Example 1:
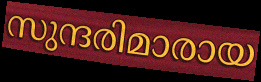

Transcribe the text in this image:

സുന്ദരിമാരായ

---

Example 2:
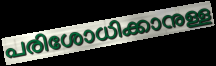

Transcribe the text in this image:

പരിശോധിക്കാനുള്ള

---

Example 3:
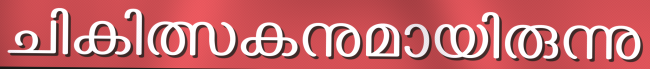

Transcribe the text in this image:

ചികിത്സകനുമായിരുന്നു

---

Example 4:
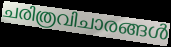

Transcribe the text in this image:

ചരിത്രവിചാരങ്ങൾ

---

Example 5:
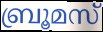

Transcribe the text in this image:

ബ്രൂമസ്